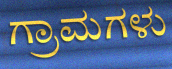
ಗ್ರಾಮಗಳು